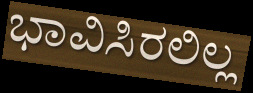
ಭಾವಿಸಿರಲಿಲ್ಲ